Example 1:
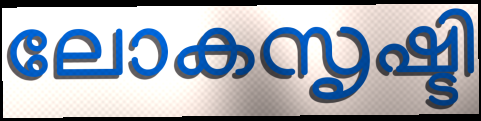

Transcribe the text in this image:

ലോകസൃഷ്ടി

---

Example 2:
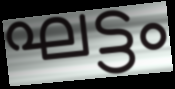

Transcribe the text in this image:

ഘട്ടം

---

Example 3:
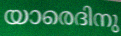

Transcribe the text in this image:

യാരെദിനു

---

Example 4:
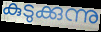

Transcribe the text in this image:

കുടുക്കുന്നു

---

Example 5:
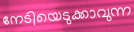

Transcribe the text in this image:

നേടിയെടുക്കാവുന്ന